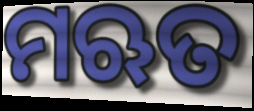
ମଋତ